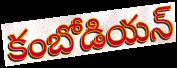
కంబోడియన్